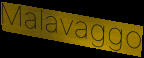
Malavaggo